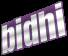
bidhi